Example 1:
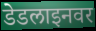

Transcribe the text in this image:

डेडलाइनवर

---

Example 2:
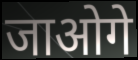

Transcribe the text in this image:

जाओगे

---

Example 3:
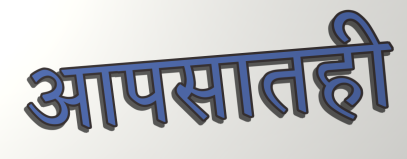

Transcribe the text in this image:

आपसातही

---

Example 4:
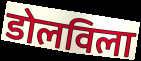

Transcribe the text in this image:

डोलविला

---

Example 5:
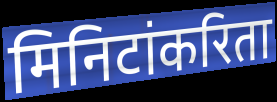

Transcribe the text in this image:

मिनिटांकरिता